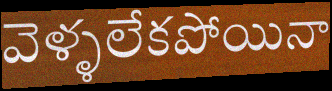
వెళ్ళలేకపోయినా